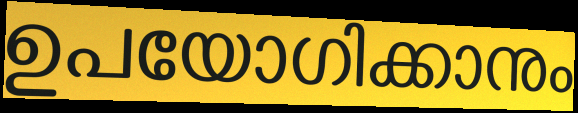
ഉപയോഗിക്കാനും